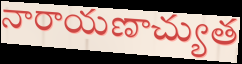
నారాయణాచ్యుత